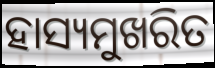
ହାସ୍ୟମୁଖରିତ